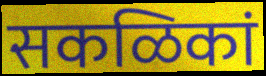
सकळिकां